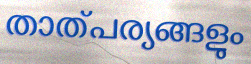
താത്പര്യങ്ങളും